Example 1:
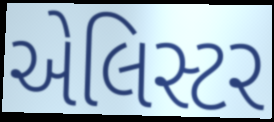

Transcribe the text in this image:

એલિસ્ટર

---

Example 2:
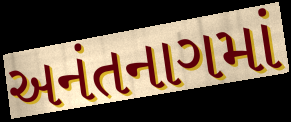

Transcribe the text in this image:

અનંતનાગમાં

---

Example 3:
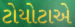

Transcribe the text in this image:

ટોયોટાએ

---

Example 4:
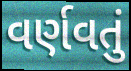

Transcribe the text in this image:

વર્ણવતું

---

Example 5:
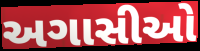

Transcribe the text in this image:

અગાસીઓ